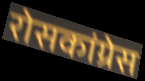
रोसकांग्रेस